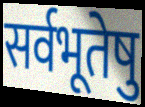
सर्वभूतेषु